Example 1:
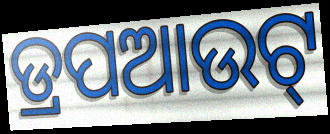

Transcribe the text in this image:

ଡ୍ରପଆଉଟ୍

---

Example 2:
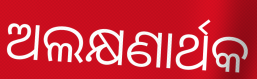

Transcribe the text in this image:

ଅଲକ୍ଷଣାର୍ଥକ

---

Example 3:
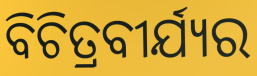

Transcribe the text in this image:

ବିଚିତ୍ରବୀର୍ଯ୍ୟର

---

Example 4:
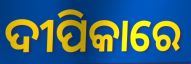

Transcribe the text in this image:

ଦୀପିକାରେ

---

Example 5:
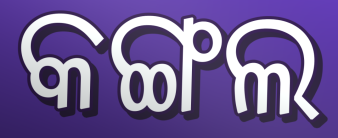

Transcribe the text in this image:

କଙ୍ଗଲ